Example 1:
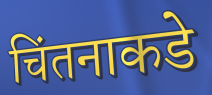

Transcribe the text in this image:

चिंतनाकडे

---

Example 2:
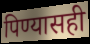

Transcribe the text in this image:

पिण्यासही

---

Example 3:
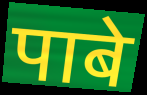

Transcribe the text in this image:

पाबे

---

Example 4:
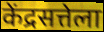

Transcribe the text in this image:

केंद्रसत्तेला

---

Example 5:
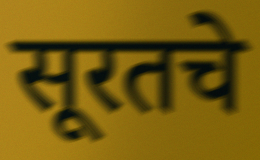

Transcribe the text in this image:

सूरतचे